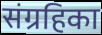
संग्रहिका